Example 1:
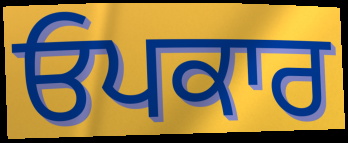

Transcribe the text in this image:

ਓਪਕਾਰ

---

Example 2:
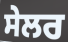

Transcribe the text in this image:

ਸੇਲਰ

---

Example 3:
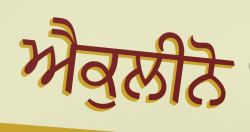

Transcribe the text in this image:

ਐਕੁਲੀਨੋ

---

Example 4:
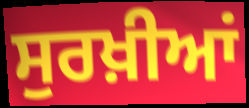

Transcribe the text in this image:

ਸੁਰਖ਼ੀਆਂ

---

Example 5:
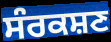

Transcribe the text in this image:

ਸੰਰਕਸ਼ਣ